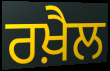
ਰਖ਼ੈਲ